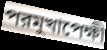
পরমুখাপেক্ষী